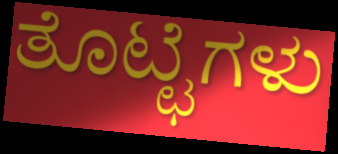
ತೊಟ್ಟೆಗಳು